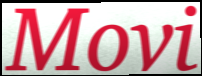
Movi